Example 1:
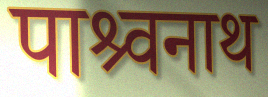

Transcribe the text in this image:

पाश्र्वनाथ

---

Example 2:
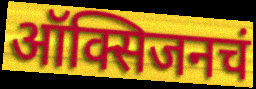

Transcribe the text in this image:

ऑक्सिजनचं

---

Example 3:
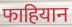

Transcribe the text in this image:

फाहियान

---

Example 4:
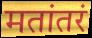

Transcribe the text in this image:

मतांतरं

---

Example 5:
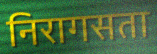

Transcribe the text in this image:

निरागसता